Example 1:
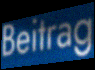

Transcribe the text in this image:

Beitrag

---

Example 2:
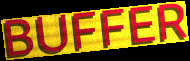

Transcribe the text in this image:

BUFFER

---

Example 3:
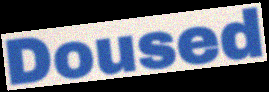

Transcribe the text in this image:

Doused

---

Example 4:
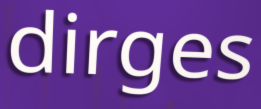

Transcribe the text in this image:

dirges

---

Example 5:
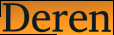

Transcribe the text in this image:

Deren